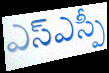
ఎస్ఎస్పీ